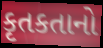
કૃતકતાનો